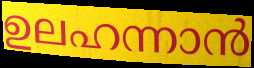
ഉലഹന്നാൻ